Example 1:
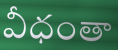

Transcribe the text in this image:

వీధంతా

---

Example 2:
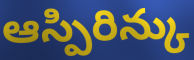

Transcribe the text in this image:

ఆస్పిరిన్కు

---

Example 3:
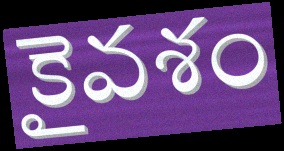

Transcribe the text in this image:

కైవశం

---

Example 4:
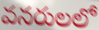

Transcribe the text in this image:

వనరులలో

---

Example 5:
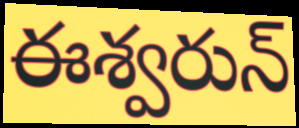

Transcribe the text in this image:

ఈశ్వరున్